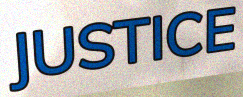
JUSTICE